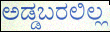
ಅಡ್ಡಬರಲಿಲ್ಲ